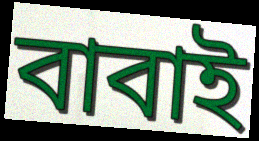
বাবাই